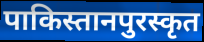
पाकिस्तानपुरस्कृत